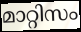
മാറ്റിസം